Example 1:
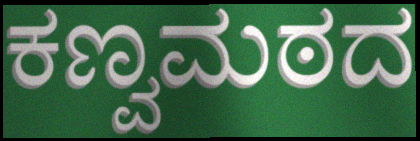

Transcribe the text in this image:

ಕಣ್ವಮಠದ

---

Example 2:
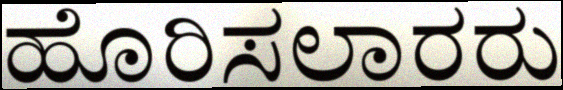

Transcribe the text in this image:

ಹೊರಿಸಲಾರರು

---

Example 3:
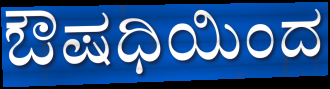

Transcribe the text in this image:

ಔಷಧಿಯಿಂದ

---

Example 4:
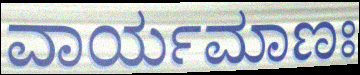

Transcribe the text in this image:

ವಾರ್ಯಮಾಣಃ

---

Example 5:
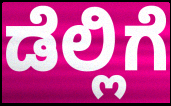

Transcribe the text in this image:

ಡೆಲ್ಲಿಗೆ